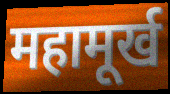
महामूर्ख